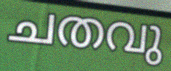
ചതവു